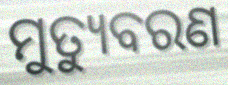
ମୁତ୍ୟୁବରଣ